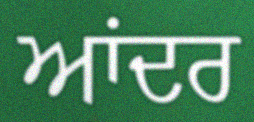
ਆਂਦਰ